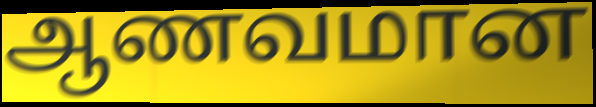
ஆணவமான